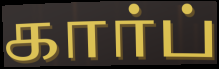
கார்ப்